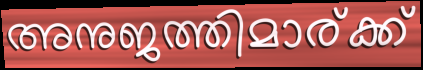
അനുജത്തിമാര്ക്ക്